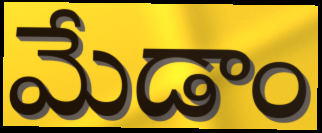
మేడాం